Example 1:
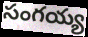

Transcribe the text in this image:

సంగయ్య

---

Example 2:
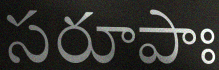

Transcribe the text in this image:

సరూపాః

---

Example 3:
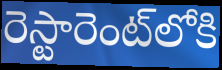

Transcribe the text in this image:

రెస్టారెంట్‌లోకి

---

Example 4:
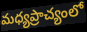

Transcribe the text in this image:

మధ్యప్రాచ్యంలో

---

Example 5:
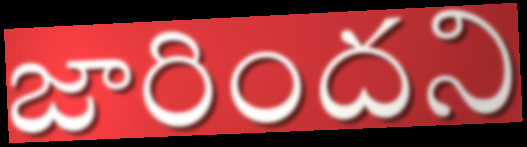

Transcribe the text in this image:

జారిందని